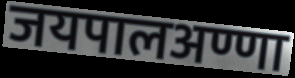
जयपालअण्णा